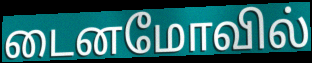
டைனமோவில்